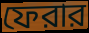
ফেরার